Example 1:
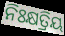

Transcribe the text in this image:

ନିଃକ୍ଷତ୍ରିୟ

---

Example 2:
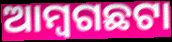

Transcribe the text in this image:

ଆମ୍ବଗଛଟା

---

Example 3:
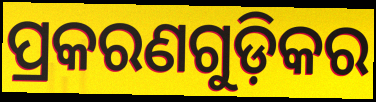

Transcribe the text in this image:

ପ୍ରକରଣଗୁଡ଼ିକର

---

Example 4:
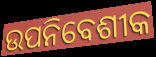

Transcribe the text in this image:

ଉପନିବେଶୀକ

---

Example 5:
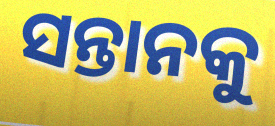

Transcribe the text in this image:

ସନ୍ତାନକୁ